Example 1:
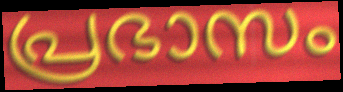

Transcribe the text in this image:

പ്രഭാസം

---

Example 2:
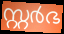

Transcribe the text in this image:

സ്റ്റർഭ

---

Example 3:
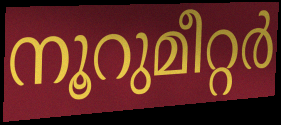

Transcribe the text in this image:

നൂറുമീറ്റർ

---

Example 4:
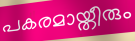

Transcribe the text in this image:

പകരമായ്തീരും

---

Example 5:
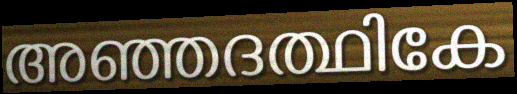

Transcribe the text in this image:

അഞ്ഞദത്ഥികേ